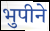
भुपीने